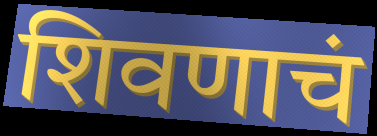
शिवणाचं